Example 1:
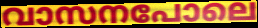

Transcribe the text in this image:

വാസനപോലെ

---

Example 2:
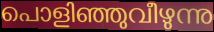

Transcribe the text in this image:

പൊളിഞ്ഞുവീഴുന്നു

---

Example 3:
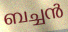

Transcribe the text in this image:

ബച്ചൻ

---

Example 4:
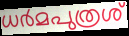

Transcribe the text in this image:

ധർമപുത്രശ്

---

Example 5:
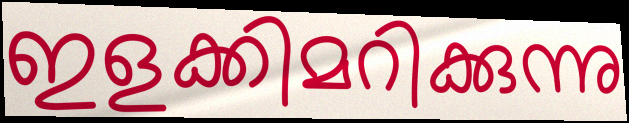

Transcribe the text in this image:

ഇളക്കിമറിക്കുന്നു